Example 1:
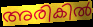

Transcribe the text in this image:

അരികിൽ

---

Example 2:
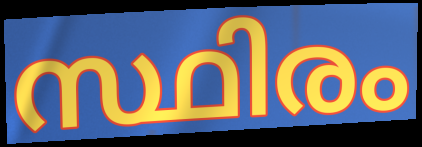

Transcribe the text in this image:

സ്ഥിരം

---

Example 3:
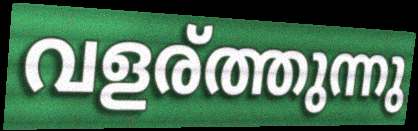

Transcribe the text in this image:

വളര്ത്തുന്നു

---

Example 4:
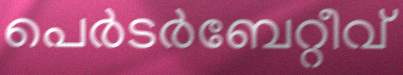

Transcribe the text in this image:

പെർടർബേറ്റീവ്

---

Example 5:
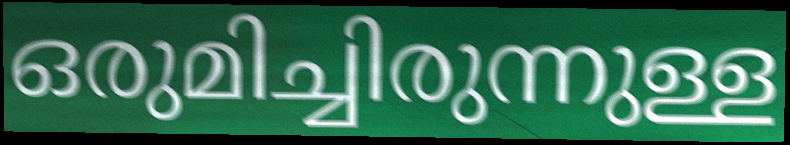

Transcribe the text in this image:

ഒരുമിച്ചിരുന്നുള്ള